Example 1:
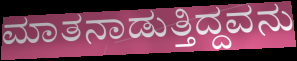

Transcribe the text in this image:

ಮಾತನಾಡುತ್ತಿದ್ದವನು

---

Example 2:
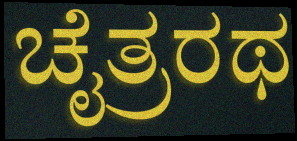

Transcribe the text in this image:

ಚೈತ್ರರಥ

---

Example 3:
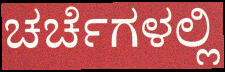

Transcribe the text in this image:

ಚರ್ಚೆಗಳಲ್ಲಿ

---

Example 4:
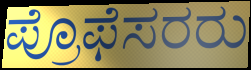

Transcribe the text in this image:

ಪ್ರೊಫೆಸರರು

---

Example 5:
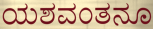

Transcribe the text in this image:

ಯಶವಂತನೂ